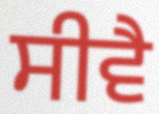
ਸੀਵੈ